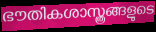
ഭൗതികശാസ്ത്രങ്ങളുടെ